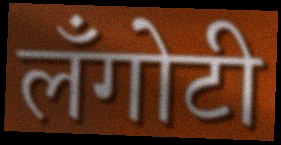
लँगोटी